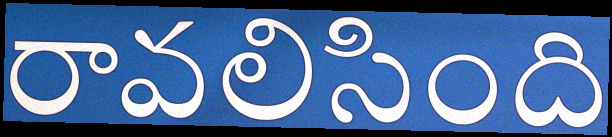
రావలిసింది